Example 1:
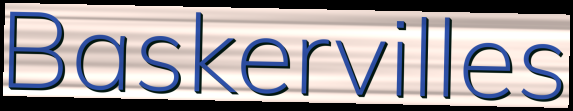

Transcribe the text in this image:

Baskervilles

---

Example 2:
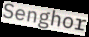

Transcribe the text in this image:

Senghor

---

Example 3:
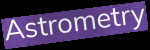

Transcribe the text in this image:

Astrometry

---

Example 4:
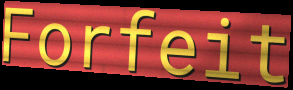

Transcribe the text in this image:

Forfeit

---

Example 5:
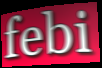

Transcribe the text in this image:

febi